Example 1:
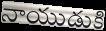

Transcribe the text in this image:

నాయుడుకి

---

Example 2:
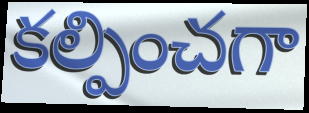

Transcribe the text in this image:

కల్పించగా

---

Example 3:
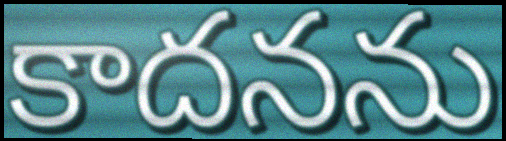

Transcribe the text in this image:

కాదనను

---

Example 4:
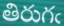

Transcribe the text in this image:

తిరుగఁ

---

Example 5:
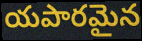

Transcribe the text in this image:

యపారమైన